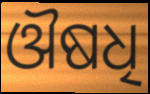
ଔଷଧି